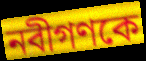
নবীগণকে